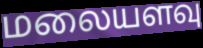
மலையளவு